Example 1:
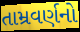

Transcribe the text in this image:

તામ્રવર્ણનો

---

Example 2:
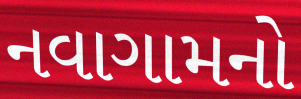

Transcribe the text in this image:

નવાગામનો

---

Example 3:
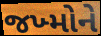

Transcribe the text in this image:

જખ્મોને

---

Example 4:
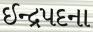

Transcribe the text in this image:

ઈન્દ્રપદના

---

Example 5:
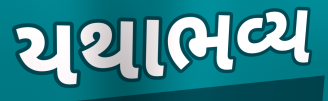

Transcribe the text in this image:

યથાભવ્ય